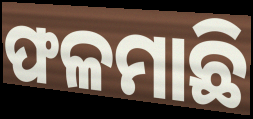
ଫଳମାଛି